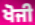
ਖੋਜੀ